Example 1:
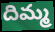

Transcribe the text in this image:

దిమ్మ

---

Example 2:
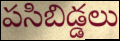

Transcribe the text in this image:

పసిబిడ్డలు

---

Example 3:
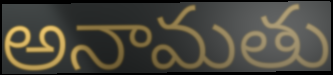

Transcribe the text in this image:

అనామతు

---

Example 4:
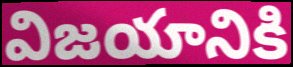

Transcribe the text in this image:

విజయానికి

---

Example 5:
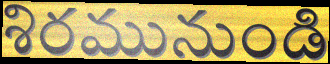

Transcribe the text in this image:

శిరమునుండి